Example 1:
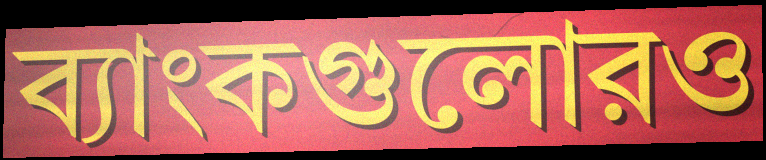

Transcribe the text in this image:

ব্যাংকগুলোরও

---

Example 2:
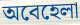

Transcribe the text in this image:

অবেহেলা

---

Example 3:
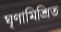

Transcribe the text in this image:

ঘৃণামিশ্রিত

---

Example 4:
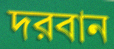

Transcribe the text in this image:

দরবান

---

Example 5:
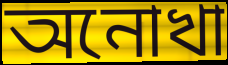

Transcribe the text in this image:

অনোখা